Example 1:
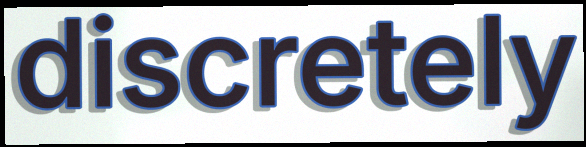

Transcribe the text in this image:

discretely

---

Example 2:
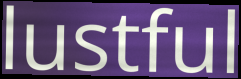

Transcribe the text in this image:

lustful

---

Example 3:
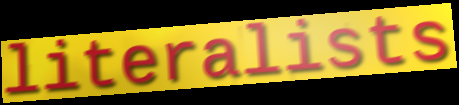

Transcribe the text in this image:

literalists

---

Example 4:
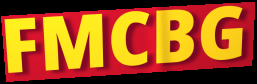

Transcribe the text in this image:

FMCBG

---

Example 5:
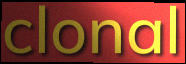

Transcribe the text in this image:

clonal